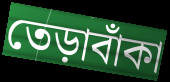
তেড়াবাঁকা